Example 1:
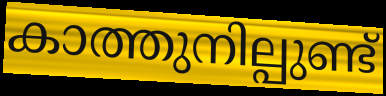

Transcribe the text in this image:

കാത്തുനില്പുണ്ട്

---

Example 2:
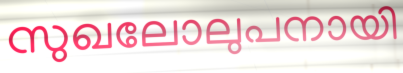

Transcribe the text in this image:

സുഖലോലുപനായി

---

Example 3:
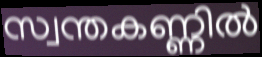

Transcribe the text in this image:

സ്വന്തകണ്ണിൽ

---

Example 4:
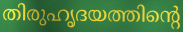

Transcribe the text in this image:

തിരുഹൃദയത്തിന്റെ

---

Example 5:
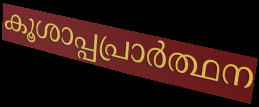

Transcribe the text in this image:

കൂശാപ്പപ്രാർത്ഥന